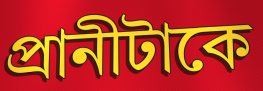
প্রানীটাকে